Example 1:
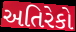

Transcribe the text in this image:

અતિરેકો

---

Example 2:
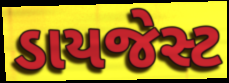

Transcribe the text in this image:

ડાયજેસ્ટ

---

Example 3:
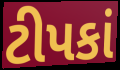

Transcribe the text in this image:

ટીપકાં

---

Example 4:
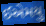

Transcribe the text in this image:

ઈએમયુ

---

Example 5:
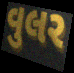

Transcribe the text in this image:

વુલર